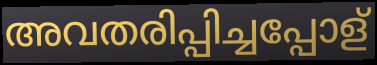
അവതരിപ്പിച്ചപ്പോള്